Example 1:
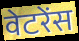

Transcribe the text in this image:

वेटरेंस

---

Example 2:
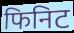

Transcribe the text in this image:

फिनिट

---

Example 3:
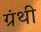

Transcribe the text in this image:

ग्रंथी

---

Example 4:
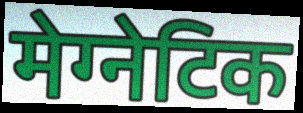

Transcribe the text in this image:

मेग्नेटिक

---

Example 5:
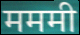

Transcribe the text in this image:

मममी